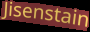
Jisenstain